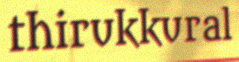
thirukkural